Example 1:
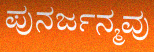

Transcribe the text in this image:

ಪುನರ್ಜನ್ಮವು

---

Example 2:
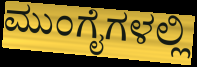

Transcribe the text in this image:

ಮುಂಗೈಗಳಲ್ಲಿ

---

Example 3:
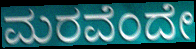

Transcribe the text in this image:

ಮರವೆಂದೇ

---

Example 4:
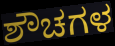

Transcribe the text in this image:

ಶೌಚಗಳ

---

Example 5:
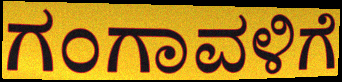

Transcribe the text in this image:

ಗಂಗಾವಳಿಗೆ